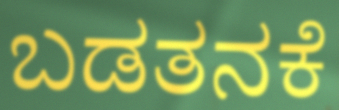
ಬಡತನಕೆ